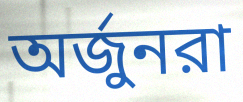
অর্জুনরা